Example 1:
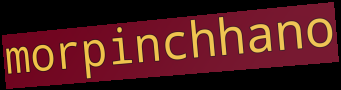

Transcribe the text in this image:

morpinchhano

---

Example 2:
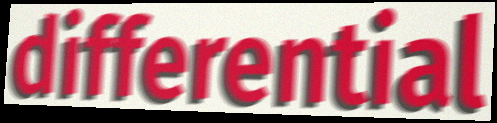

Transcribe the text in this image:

differential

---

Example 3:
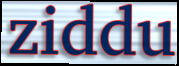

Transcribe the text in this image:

ziddu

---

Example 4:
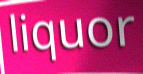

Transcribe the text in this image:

liquor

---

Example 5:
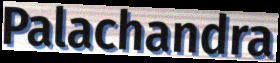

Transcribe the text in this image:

Palachandra